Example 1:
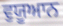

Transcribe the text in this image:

ਵੁਯੂਆਨ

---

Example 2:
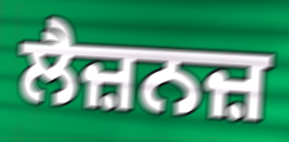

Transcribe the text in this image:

ਲੈਜ਼ਨਜ਼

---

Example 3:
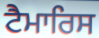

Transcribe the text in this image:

ਟੈਮਾਰਿਸ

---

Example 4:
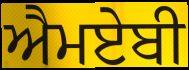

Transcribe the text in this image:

ਐਮਏਬੀ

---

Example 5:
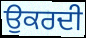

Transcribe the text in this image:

ਉਕਰਦੀ